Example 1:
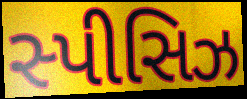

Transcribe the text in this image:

સ્પીસિઝ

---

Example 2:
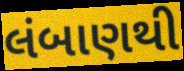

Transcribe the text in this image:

લંબાણથી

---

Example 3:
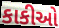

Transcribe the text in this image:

કાકીઓ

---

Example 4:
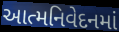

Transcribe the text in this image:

આત્મનિવેદનમાં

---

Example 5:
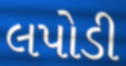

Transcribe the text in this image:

લપોડી